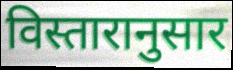
विस्तारानुसार